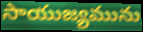
సాయుజ్యమును